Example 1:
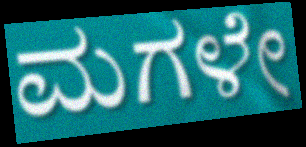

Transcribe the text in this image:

ಮಗಳೇ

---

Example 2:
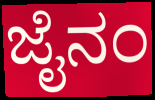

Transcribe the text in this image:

ಜೈನಂ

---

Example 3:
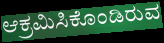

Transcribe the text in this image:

ಆಕ್ರಮಿಸಿಕೊಂಡಿರುವ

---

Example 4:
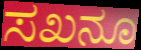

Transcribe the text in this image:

ಸಖನೂ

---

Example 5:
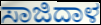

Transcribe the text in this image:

ಸಾಜಿದಾಳ